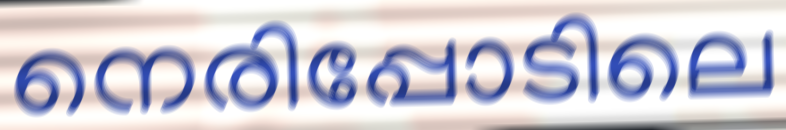
നെരിപ്പോടിലെ